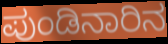
ಪುಂಡಿನಾರಿನ